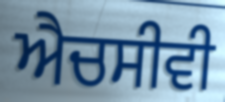
ਐਚਸੀਵੀ